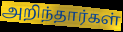
அறிந்தார்கள்